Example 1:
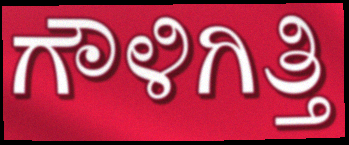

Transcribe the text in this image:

ಗೌಳಿಗಿತ್ತಿ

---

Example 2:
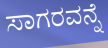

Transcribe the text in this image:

ಸಾಗರವನ್ನೆ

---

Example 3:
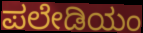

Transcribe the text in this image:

ಪಲೇಡಿಯಂ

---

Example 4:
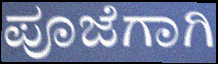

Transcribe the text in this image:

ಪೂಜೆಗಾಗಿ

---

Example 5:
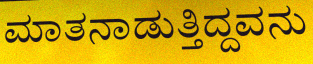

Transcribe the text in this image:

ಮಾತನಾಡುತ್ತಿದ್ದವನು